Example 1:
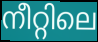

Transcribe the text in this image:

നീറ്റിലെ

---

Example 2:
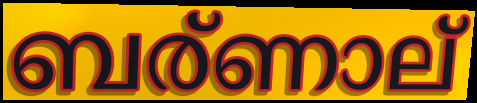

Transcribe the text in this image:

ബര്ണാല്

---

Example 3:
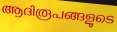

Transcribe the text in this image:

ആദിരൂപങ്ങളുടെ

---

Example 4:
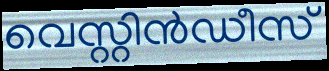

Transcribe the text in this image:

വെസ്റ്റിൻഡീസ്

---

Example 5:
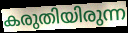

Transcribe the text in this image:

കരുതിയിരുന്ന